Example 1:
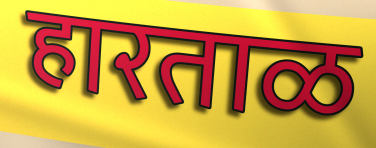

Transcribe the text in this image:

हारताळ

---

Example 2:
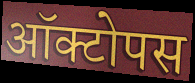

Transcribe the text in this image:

ऑक्टोपस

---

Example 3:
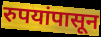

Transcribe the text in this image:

रुपयांपासून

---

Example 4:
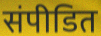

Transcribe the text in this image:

संपीडित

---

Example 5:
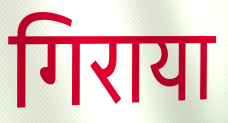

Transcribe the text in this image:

गिराया